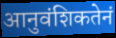
आनुवंशिकतेनं